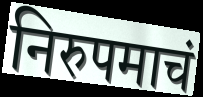
निरुपमाचं